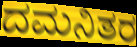
ದಮನಿತರ